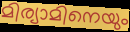
മിര്യാമിനെയും